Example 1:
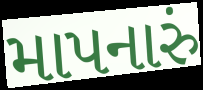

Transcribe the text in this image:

માપનારું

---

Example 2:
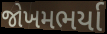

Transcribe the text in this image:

જોખમભર્યા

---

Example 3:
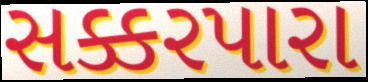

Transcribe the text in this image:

સક્કરપારા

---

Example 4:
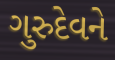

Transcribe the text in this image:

ગુરુદેવને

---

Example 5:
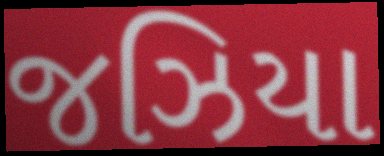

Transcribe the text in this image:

જઝિયા